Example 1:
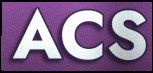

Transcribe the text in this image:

ACS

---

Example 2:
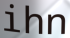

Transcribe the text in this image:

ihn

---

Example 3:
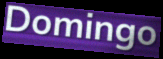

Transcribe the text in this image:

Domingo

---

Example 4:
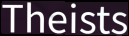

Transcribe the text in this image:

Theists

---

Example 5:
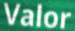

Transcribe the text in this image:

Valor